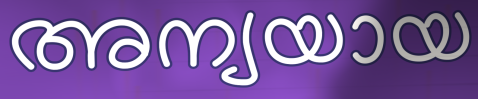
അന്യയായ